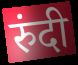
रुंदी